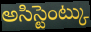
అసిస్టెంట్కు